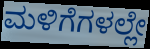
ಮಳಿಗೆಗಳಲ್ಲೇ